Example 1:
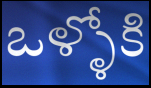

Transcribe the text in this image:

ఒళ్ళోకి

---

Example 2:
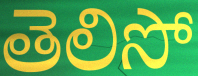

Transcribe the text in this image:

తెలిసో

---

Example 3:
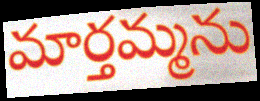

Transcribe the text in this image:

మార్తమ్మను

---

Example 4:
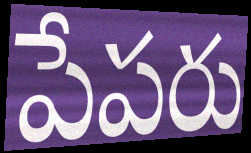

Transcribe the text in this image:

పేపరు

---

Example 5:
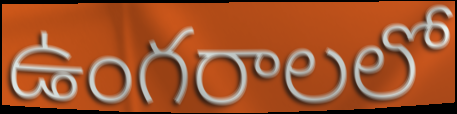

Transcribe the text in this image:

ఉంగరాలలో